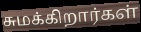
சுமக்கிறார்கள்